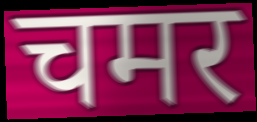
चमर